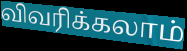
விவரிக்கலாம்